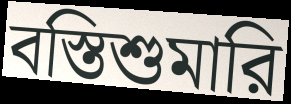
বস্তিশুমারি